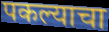
पकल्याचा